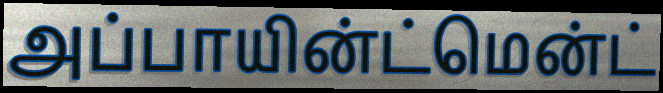
அப்பாயின்ட்மென்ட்